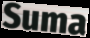
Suma